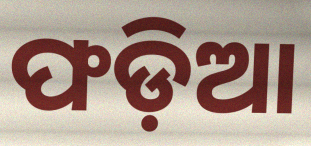
ଫଡ଼ିଆ